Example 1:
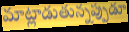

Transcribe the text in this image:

మాట్లాడుతున్నప్పుడూ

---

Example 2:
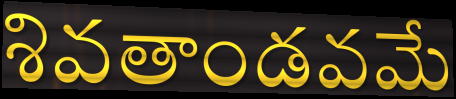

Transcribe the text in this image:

శివతాండవమే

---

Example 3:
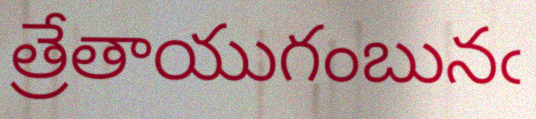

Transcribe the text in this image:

త్రేతాయుగంబునఁ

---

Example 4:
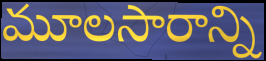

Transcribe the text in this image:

మూలసారాన్ని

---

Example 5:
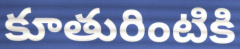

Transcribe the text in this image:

కూతురింటికి